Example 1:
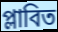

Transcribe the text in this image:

প্লাবিত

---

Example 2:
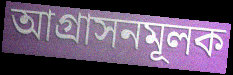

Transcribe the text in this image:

আগ্রাসনমূলক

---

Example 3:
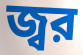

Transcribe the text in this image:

জ্বর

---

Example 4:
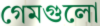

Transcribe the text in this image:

গেমগুলো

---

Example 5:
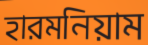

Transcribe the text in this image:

হারমনিয়াম